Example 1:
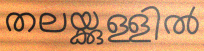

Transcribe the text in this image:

തലയ്ക്കുള്ളിൽ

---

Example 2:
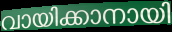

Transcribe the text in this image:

വായിക്കാനായി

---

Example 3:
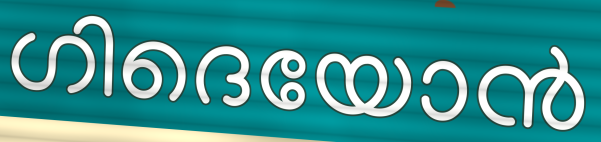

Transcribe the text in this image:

ഗിദെയോൻ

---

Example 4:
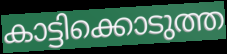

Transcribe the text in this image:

കാട്ടിക്കൊടുത്ത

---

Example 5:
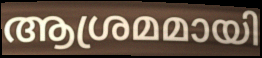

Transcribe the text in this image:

ആശ്രമമായി